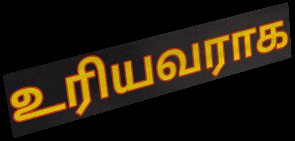
உரியவராக